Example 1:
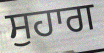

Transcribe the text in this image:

ਸੁਹਾਗ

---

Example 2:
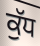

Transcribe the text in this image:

ਕੁੱਧ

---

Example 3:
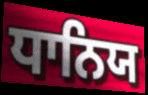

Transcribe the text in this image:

ਧਾਨਿਯ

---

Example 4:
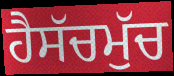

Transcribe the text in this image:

ਹੈਸੱਚਮੁੱਚ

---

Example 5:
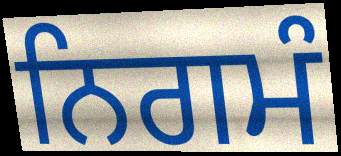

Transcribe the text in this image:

ਨਿਗਮੰ